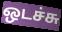
ஒடச்சு